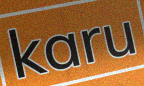
karu